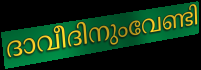
ദാവീദിനുംവേണ്ടി